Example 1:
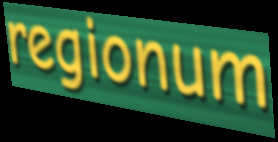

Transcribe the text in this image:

regionum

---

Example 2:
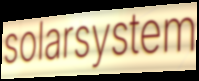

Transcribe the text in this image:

solarsystem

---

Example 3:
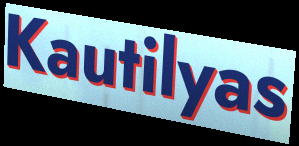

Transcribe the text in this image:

Kautilyas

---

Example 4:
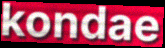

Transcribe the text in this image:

kondae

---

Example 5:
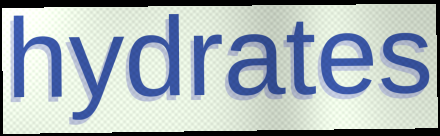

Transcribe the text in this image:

hydrates